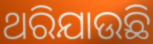
ଥରିଯାଉଛି